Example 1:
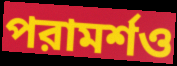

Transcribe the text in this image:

পরামর্শও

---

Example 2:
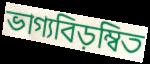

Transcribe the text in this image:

ভাগ্যবিড়ম্বিত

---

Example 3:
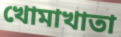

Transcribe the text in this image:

খোমাখাতা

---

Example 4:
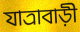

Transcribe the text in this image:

যাত্রাবাড়ী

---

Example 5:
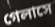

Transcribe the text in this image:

গেলাসে